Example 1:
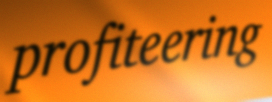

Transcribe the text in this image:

profiteering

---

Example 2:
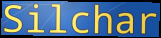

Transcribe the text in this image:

Silchar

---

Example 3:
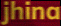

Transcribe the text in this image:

jhina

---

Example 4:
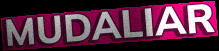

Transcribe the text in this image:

MUDALIAR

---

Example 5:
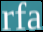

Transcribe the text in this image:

rfa